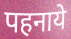
पहनाये